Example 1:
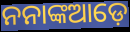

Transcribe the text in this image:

ନନାଙ୍କଆଡ଼େ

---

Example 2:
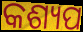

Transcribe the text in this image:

କଶ୍ୟପ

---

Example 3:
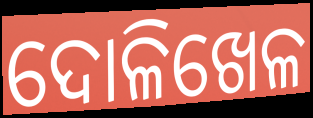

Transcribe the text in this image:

ଦୋଳିଖେଳ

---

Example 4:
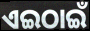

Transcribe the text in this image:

ଏଇଠାଇଁ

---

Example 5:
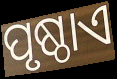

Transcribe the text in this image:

ପୃଷ୍ଠାଏ